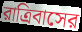
রাত্রিবাসের